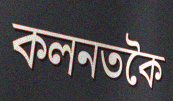
কলনতকৈ